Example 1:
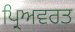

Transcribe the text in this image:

ਪ੍ਰਿਅਵਰਤ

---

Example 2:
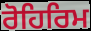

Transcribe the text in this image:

ਰੋਹਿਰਿਮ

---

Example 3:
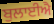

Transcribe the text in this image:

ਬੁਲਾਈਐ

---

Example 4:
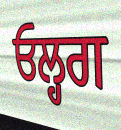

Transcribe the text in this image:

ਓਲ੍ਹਗ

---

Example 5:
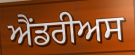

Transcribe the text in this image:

ਐਂਡਰੀਅਸ